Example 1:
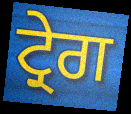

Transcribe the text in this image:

ਟ੍ਰੇਗ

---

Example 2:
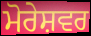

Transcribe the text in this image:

ਮੋਰੇਸ਼ਵਰ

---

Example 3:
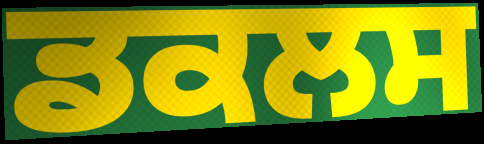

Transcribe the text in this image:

ਡਕਲਸ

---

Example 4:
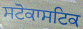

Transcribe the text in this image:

ਸਟੋਕਾਸਟਿਕ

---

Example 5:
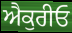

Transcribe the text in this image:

ਐਕੁਰੀਓ